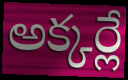
అక్కర్లే